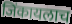
जिंकायलाच